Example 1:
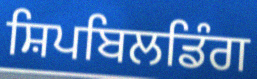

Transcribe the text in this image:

ਸ਼ਿਪਬਿਲਡਿੰਗ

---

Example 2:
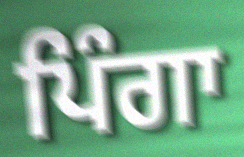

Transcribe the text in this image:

ਪਿੰਗਾ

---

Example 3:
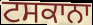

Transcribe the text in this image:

ਟਸਕਾਨਾ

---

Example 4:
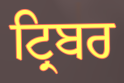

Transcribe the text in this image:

ਟ੍ਰਿਬਰ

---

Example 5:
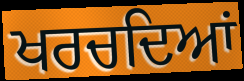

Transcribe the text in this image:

ਖਰਚਦਿਆਂ